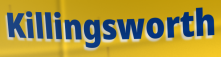
Killingsworth